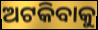
ଅଟକିବାକୁ